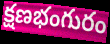
క్షణభంగురం